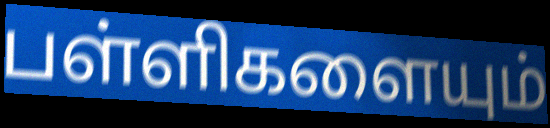
பள்ளிகளையும்